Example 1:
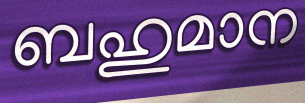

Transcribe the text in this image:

ബഹുമാന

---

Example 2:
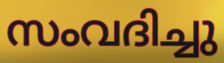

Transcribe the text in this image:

സംവദിച്ചു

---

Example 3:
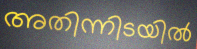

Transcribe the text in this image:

അതിന്നിടയിൽ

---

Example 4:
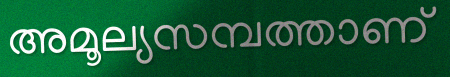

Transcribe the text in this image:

അമൂല്യസമ്പത്താണ്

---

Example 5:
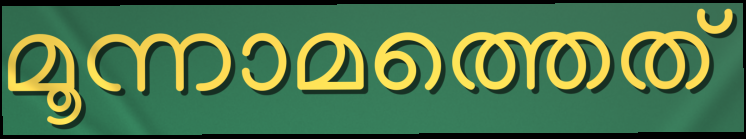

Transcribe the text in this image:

മൂന്നാമത്തെത്